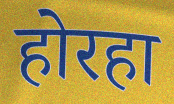
होरहा